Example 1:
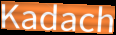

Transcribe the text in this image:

Kadach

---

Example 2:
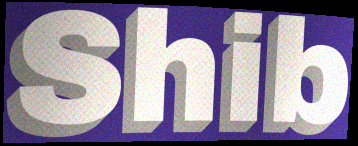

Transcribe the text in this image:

Shib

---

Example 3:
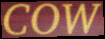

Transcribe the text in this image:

COW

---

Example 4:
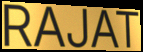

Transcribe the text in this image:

RAJAT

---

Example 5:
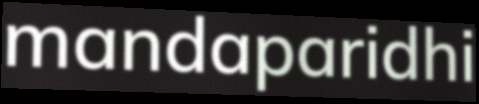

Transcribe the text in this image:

mandaparidhi